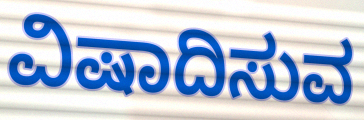
ವಿಷಾದಿಸುವ